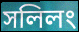
সলিলং